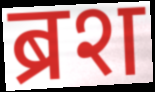
ब्रश